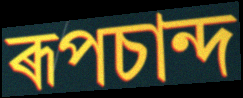
ৰূপচান্দ